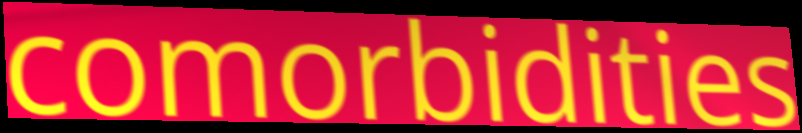
comorbidities